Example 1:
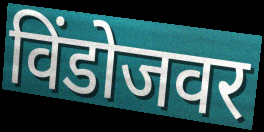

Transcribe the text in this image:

विंडोजवर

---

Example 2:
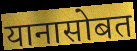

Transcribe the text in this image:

यानासोबत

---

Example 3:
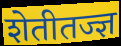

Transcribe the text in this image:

शेतीतज्ज्ञ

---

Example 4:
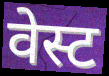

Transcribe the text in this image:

वेस्ट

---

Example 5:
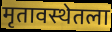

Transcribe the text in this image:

मृतावस्थेतला